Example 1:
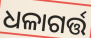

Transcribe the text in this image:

ଧଳାଗର୍ତ୍ତ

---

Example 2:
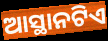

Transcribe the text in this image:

ଆସ୍ଥାନଟିଏ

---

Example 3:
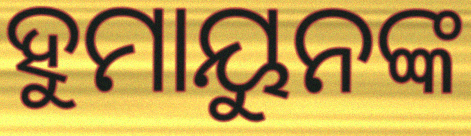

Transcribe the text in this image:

ହୁମାୟୁନଙ୍କ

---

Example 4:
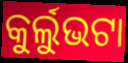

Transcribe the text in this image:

କୁର୍ଲୁଭଟା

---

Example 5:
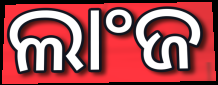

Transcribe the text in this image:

ଲାଂଜ